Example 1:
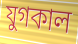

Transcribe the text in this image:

যুগকাল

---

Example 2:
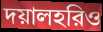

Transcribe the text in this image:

দয়ালহরিও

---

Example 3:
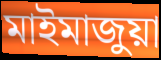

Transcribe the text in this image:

মাইমাজুয়া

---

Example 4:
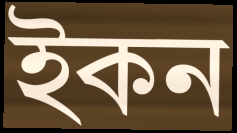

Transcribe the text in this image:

ইকন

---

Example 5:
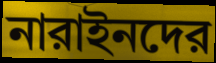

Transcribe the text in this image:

নারাইনদের